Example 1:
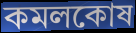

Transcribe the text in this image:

কমলকোষ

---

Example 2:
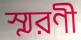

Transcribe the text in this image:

স্মরণী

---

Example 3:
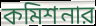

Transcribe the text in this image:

কমিশনার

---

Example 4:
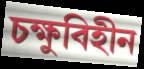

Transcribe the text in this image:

চক্ষুবিহীন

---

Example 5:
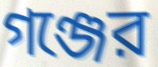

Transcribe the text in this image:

গঞ্জের